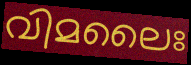
വിമലൈഃ